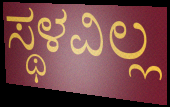
ಸ್ಥಳವಿಲ್ಲ